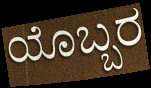
ಯೊಬ್ಬರ